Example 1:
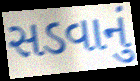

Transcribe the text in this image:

સડવાનું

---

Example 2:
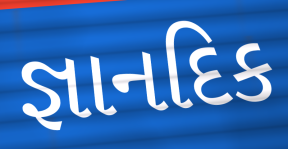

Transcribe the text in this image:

જ્ઞાનદિક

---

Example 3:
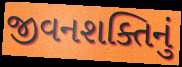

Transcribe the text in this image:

જીવનશક્તિનું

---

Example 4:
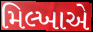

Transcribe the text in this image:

મિલ્ખાએ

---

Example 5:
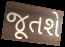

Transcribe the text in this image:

જૂતશે